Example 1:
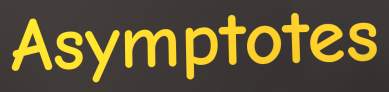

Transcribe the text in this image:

Asymptotes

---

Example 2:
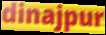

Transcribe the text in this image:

dinajpur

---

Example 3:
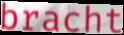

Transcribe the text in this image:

bracht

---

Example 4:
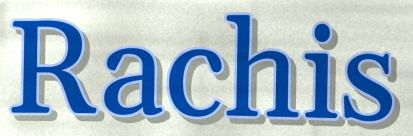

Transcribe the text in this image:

Rachis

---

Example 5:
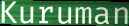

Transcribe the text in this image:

Kuruman